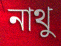
নাথু